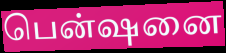
பென்ஷனை